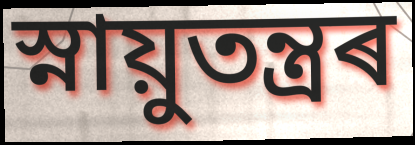
স্নায়ুতন্ত্ৰৰ